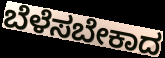
ಬೆಳೆಸಬೇಕಾದ